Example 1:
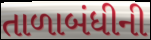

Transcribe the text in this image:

તાળાબંધીની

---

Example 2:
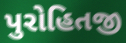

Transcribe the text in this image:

પુરોહિતજી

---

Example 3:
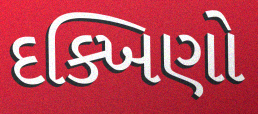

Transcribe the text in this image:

દક્ખિણો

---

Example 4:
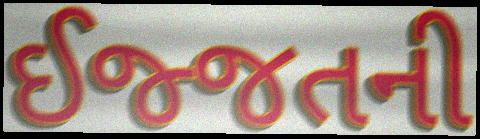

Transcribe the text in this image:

ઈજ્જતની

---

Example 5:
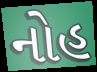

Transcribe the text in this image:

નોહ